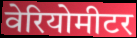
वेरियोमीटर